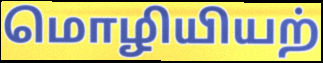
மொழியியற்